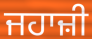
ਜਹਾਜ਼ੀ